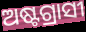
ଅଷ୍ଟଗ୍ରାସୀ